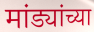
मांड्यांच्या